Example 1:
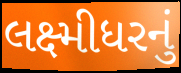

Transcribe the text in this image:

લક્ષ્મીધરનું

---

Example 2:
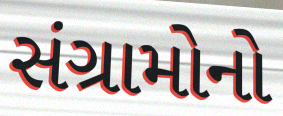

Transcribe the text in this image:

સંગ્રામોનો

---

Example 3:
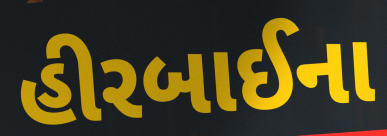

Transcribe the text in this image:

હીરબાઈના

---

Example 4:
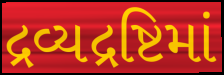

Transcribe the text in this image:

દ્રવ્યદ્રષ્ટિમાં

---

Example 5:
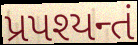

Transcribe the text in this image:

પ્રપશ્યન્તં